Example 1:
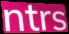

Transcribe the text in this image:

ntrs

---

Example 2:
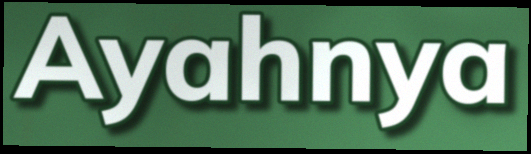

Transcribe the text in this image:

Ayahnya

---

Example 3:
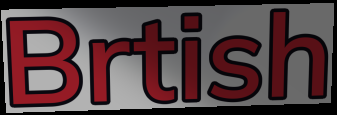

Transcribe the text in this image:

Brtish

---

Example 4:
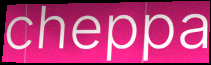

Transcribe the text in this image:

cheppa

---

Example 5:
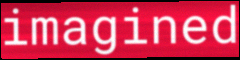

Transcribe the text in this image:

imagined